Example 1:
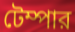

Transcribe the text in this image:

টেম্পার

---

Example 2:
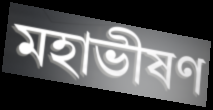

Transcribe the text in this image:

মহাভীষণ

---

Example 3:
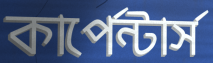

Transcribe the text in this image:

কার্পেন্টার্স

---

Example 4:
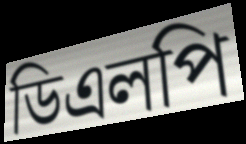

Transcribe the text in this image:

ডিএলপি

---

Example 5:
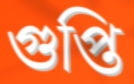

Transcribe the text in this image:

গুপ্তি